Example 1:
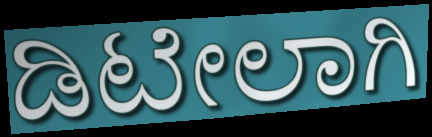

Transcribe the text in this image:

ಡಿಟೇಲಾಗಿ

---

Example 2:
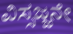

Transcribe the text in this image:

ವಿಸ್ಸಜ್ಜನೇ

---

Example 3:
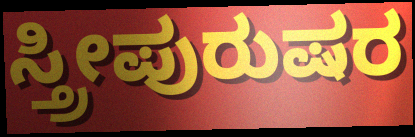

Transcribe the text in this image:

ಸ್ತ್ರೀಪುರುಷರ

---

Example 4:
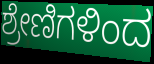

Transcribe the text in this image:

ಶ್ರೇಣಿಗಳಿಂದ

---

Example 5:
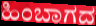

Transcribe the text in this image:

ಹಿಂಬಾಗದ